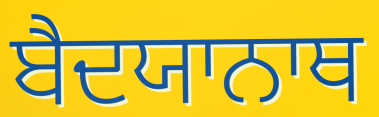
ਬੈਦਯਾਨਾਥ